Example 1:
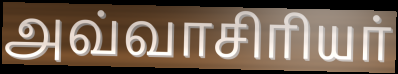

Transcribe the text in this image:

அவ்வாசிரியர்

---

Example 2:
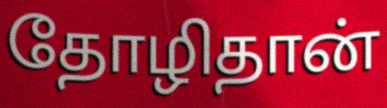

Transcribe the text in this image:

தோழிதான்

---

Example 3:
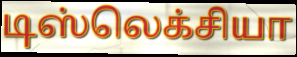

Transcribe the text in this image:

டிஸ்லெக்சியா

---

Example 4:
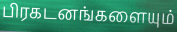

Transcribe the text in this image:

பிரகடனங்களையும்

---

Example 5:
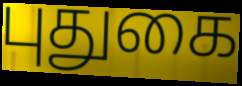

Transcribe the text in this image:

புதுகை